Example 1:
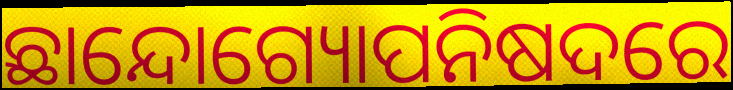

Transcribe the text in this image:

ଛାନ୍ଦୋଗ୍ୟୋପନିଷଦରେ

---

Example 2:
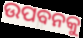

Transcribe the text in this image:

ଉପବନକୁ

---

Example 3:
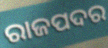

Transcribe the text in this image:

ରାଜପଦର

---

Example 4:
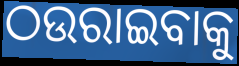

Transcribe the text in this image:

ଠଉରାଇବାକୁ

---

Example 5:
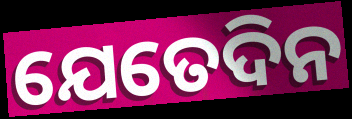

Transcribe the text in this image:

ଯେତେଦିନ